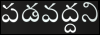
పడవద్దని